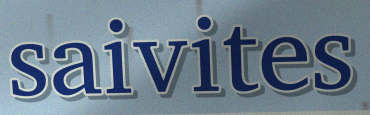
saivites